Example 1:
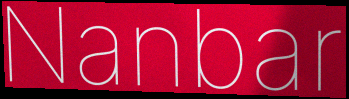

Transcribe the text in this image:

Nanbar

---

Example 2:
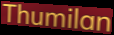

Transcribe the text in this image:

Thumilan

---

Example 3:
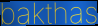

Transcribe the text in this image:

bakthas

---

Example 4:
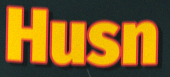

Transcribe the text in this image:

Husn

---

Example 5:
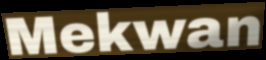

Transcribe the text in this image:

Mekwan